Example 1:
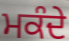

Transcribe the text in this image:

ਮਕੰਦੇ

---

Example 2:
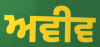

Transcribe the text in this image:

ਅਵੀਵ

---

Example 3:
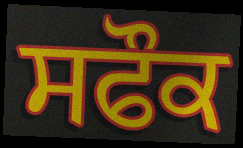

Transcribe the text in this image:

ਸਫੌਕ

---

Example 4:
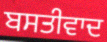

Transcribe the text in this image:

ਬਸਤੀਵਾਦ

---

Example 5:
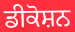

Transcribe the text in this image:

ਡੀਕੋਸ਼ਨ